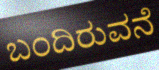
ಬಂದಿರುವನೆ